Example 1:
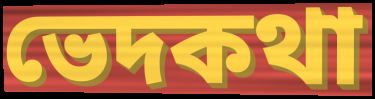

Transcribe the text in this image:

ভেদকথা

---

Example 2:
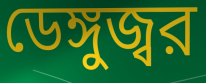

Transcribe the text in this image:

ডেঙ্গুজ্বর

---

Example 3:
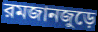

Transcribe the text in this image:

রমজানজুড়ে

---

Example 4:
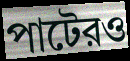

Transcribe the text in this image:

পাটেরও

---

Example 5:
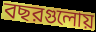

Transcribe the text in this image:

বছরগুলোয়